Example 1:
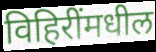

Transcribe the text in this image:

विहिरींमधील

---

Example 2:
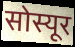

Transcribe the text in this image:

सोस्यूर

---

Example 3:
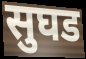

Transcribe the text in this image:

सुघड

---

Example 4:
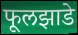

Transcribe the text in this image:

फूलझाडे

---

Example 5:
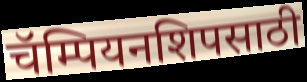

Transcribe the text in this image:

चॅम्पियनशिपसाठी